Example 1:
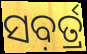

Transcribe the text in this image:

ସବ଼ର୍ତ୍ର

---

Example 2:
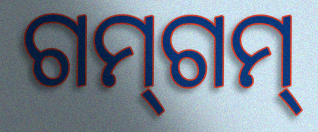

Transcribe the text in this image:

ଗମ୍‍ଗମ୍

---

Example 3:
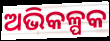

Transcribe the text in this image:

ଅଭିକଳ୍ପକ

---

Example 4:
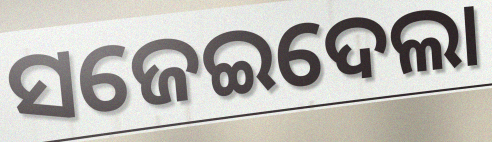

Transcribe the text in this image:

ସଜେଇଦେଲା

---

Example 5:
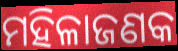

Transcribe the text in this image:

ମହିଳାଜଣକ